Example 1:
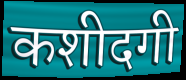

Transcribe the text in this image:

कशीदगी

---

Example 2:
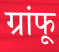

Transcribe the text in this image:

ग्रांफू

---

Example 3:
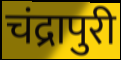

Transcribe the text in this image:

चंद्रापुरी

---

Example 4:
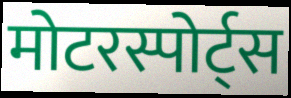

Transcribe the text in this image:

मोटरस्पोर्ट्स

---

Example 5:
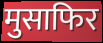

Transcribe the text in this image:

मुसाफिर